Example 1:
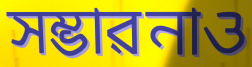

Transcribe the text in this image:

সম্ভাৱনাও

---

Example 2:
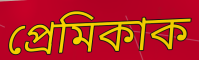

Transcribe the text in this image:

প্ৰেমিকাক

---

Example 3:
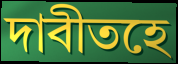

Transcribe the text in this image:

দাবীতহে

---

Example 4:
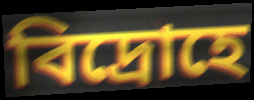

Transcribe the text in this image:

বিদ্ৰোহে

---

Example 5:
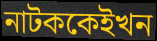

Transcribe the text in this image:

নাটককেইখন